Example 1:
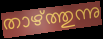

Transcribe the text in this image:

താഴ്ത്തുന്നു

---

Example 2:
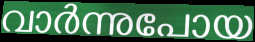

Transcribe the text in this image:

വാർന്നുപോയ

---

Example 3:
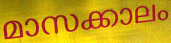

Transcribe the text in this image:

മാസക്കാലം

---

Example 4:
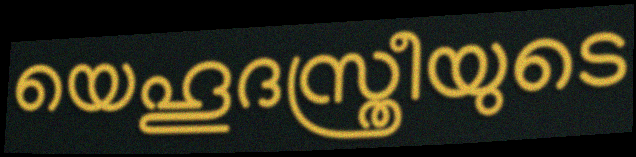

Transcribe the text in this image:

യെഹൂദസ്ത്രീയുടെ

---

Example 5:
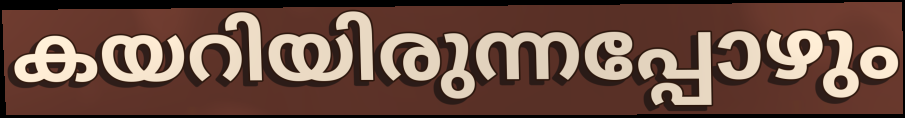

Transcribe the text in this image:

കയറിയിരുന്നപ്പോഴും